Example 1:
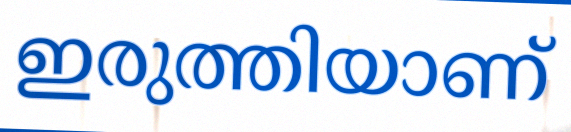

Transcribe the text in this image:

ഇരുത്തിയാണ്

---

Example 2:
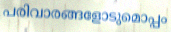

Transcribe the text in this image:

പരിവാരങ്ങളോടുമൊപ്പം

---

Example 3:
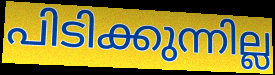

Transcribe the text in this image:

പിടിക്കുന്നില്ല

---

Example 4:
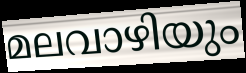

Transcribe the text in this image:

മലവാഴിയും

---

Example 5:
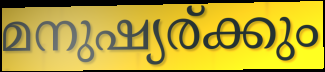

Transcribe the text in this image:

മനുഷ്യര്ക്കും